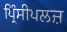
ਪ੍ਰਿੰਸੀਪਲਜ਼